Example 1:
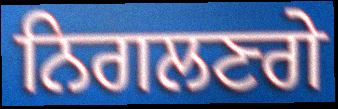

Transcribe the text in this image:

ਨਿਗਲਣਗੇ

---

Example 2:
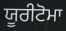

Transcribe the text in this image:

ਯੂਰੀਟੋਮਾ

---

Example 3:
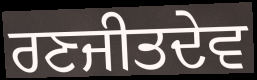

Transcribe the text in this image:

ਰਣਜੀਤਦੇਵ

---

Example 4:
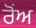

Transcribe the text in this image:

ਰੋਂਅ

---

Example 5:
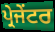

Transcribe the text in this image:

ਪ੍ਰੇਜੇਂਟਰ